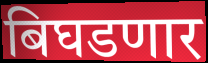
बिघडणार